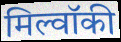
मिल्वॉकी